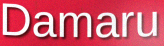
Damaru